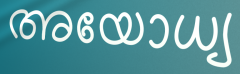
അയോധ്യ